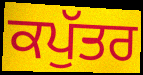
ਕਪੁੱਤਰ